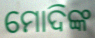
ମୋଦିଙ୍କ